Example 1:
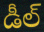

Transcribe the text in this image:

డీల్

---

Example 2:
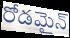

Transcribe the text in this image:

రోడమైన్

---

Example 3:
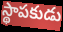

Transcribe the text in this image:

స్థాపకుడు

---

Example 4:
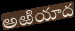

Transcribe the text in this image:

అఱియాద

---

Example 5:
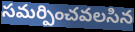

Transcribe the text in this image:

సమర్పించవలసిన